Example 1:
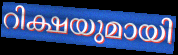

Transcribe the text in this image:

റിക്ഷയുമായി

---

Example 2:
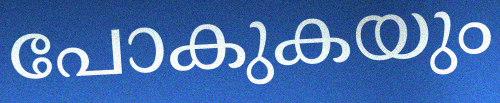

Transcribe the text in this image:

പോകുകയും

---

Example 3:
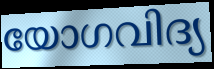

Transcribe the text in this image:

യോഗവിദ്യ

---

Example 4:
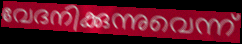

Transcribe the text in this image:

വേദനിക്കുന്നുവെന്ന്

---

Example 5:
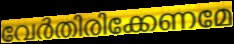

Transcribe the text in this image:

വേർതിരിക്കേണമേ